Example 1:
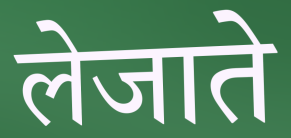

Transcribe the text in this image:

लेजाते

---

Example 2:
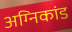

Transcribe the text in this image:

अग्‍निकांड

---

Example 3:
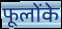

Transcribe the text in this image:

फूलोंके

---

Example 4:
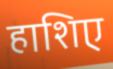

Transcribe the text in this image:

हाशिए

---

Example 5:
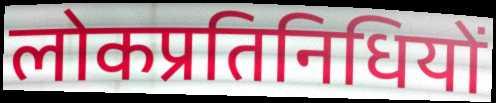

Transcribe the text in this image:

लोकप्रतिनिधियों